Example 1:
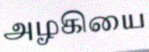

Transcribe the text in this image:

அழகியை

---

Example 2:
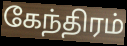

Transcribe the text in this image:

கேந்திரம்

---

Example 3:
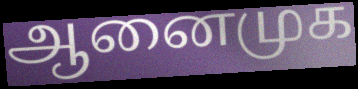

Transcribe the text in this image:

ஆனைமுக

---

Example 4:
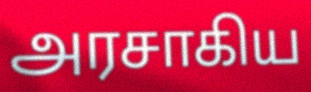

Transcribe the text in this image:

அரசாகிய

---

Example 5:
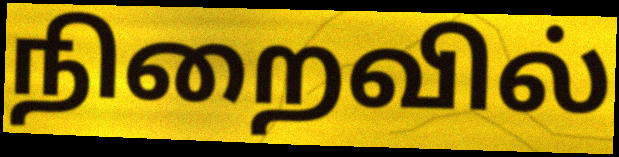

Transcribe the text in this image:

நிறைவில்